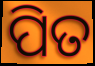
ପିତ